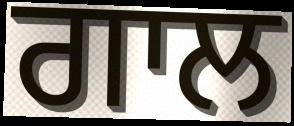
ਗਾਲ